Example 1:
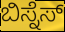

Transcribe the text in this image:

ಬಿಸ್ನೆಸ್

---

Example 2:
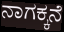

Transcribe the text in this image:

ನಾಗಕ್ಕನೆ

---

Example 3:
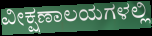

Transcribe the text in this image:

ವೀಕ್ಷಣಾಲಯಗಳಲ್ಲಿ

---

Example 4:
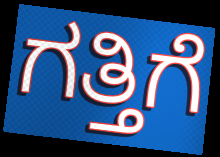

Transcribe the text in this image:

ಗತ್ತಿಗೆ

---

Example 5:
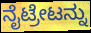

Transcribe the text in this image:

ನೈಟ್ರೇಟನ್ನು